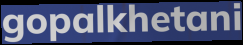
gopalkhetani